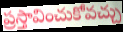
ప్రస్తావించుకోవచ్చు